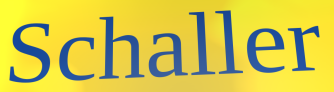
Schaller